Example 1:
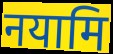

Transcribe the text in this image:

नयामि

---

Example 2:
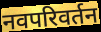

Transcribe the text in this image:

नवपरिवर्तन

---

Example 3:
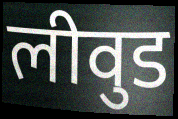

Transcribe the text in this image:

लीवुड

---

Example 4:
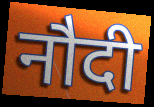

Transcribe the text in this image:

नौदी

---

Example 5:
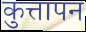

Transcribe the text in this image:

कुत्तापन